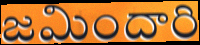
జమిందారి